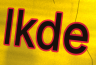
Ikde